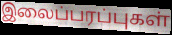
இலைப்பரப்புகள்